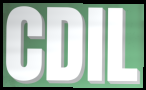
CDIL